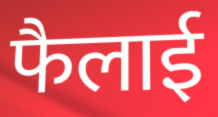
फैलाई